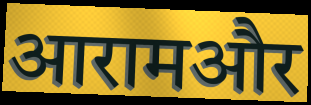
आरामऔर